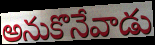
అనుకొనేవాడు